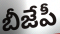
బీజేపీ